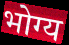
भोग्य